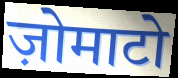
ज़ोमाटो